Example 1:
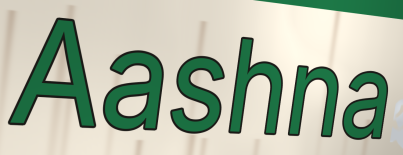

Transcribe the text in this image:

Aashna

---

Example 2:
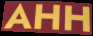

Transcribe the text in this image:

AHH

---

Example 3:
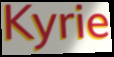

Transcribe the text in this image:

Kyrie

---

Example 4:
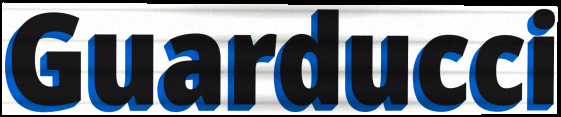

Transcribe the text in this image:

Guarducci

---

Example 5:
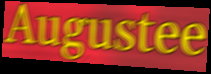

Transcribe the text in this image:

Augustee